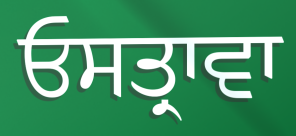
ਓਸਤ੍ਰਾਵਾ